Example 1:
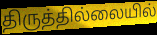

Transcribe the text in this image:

திருத்தில்லையில்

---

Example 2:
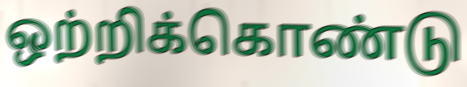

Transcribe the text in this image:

ஒற்றிக்கொண்டு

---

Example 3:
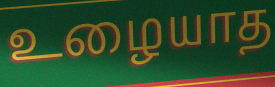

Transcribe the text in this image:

உழையாத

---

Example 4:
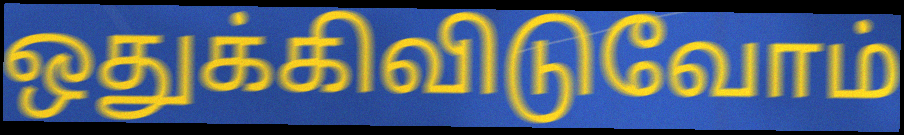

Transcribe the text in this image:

ஒதுக்கிவிடுவோம்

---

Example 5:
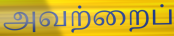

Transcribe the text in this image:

அவற்றைப்